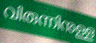
വിരുന്നിനുള്ള